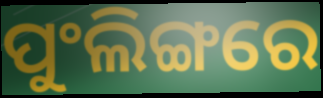
ପୁଂଲିଙ୍ଗରେ